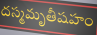
దస్మమృతీషహం